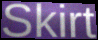
Skirt